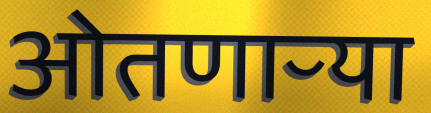
ओतणाऱ्या